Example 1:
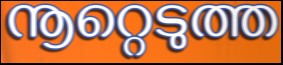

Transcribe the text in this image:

നൂറ്റെടുത്ത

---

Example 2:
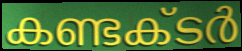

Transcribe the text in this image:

കണ്ടക്‌ടർ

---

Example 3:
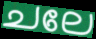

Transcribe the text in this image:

ചലേ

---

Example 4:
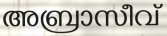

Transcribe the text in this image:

അബ്രാസീവ്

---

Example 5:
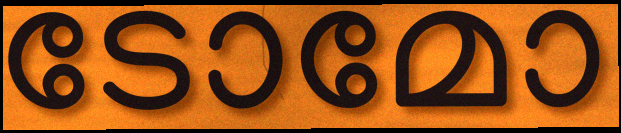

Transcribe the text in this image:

ടോമോ